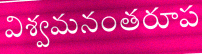
విశ్వమనంతరూప